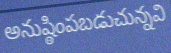
అనుష్ఠింపబడుచున్నవి